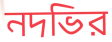
নদভির